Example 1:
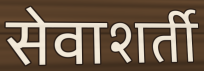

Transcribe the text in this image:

सेवाशर्ती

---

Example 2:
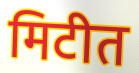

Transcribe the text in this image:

मिटीत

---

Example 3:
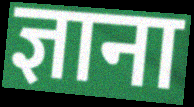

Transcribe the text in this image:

ज्ञाना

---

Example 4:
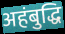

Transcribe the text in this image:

अहंबुद्धि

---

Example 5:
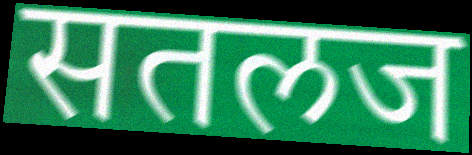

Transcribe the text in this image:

सतलज